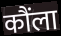
कौंला